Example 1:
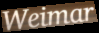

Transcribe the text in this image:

Weimar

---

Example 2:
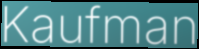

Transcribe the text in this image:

Kaufman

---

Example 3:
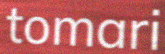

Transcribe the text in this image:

tomari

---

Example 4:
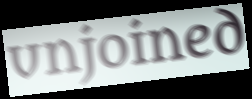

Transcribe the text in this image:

unjoined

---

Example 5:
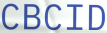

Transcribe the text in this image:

CBCID